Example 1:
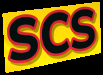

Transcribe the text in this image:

SCS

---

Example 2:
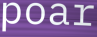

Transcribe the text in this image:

poar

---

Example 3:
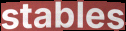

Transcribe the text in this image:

stables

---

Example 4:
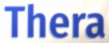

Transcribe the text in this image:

Thera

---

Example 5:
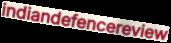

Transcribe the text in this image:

indiandefencereview